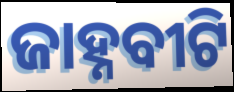
ଜାହ୍ନବୀଟି